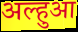
अल्हुआ